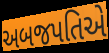
અબજપતિએ